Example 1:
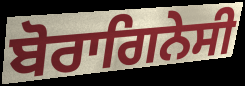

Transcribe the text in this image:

ਬੋਰਾਗਿਨੇਸੀ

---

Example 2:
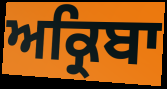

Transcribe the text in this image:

ਅਕ੍ਰਿਬਾ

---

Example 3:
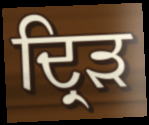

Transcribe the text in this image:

ਦ੍ਰਿਡ਼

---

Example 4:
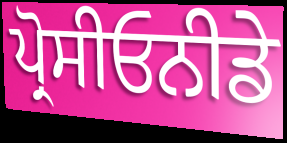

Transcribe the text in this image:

ਪ੍ਰੋਸੀਓਨੀਡੇ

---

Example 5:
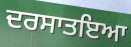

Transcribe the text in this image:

ਦਰਸਾਤਇਆ